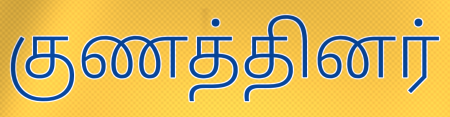
குணத்தினர்